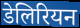
डेलिरियन